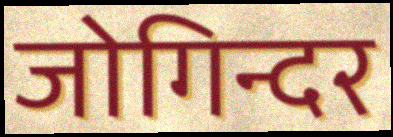
जोगिन्दर